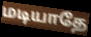
மடியாதே